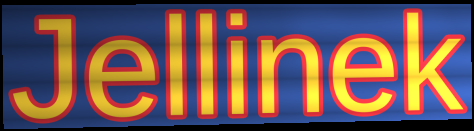
Jellinek